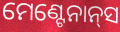
ମେଣ୍ଟେନାନ୍‌ସ